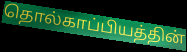
தொல்காப்பியத்தின்